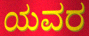
ಯವರ